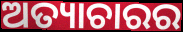
ଅତ୍ୟାଚାରର